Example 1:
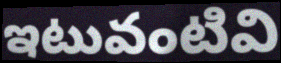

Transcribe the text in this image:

ఇటువంటివి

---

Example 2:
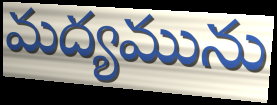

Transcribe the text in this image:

మద్యమును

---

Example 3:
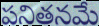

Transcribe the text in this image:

పనితనమే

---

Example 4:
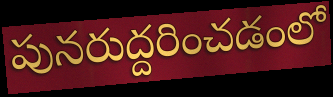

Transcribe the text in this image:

పునరుద్దరించడంలో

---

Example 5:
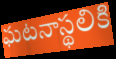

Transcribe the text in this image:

ఘటనాస్థలికి